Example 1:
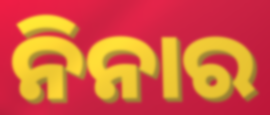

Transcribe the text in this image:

ନିନାର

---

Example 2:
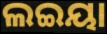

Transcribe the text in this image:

ଲଇୟା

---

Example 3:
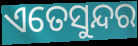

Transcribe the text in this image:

ଏତେସୁନ୍ଦର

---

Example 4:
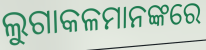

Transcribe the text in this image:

ଲୁଗାକଳମାନଙ୍କରେ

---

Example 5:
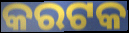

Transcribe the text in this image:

କରଟକ